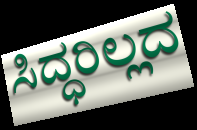
ಸಿದ್ಧರಿಲ್ಲದ